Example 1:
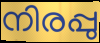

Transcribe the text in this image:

നിരപ്പു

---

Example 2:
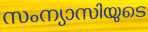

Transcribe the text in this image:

സംന്യാസിയുടെ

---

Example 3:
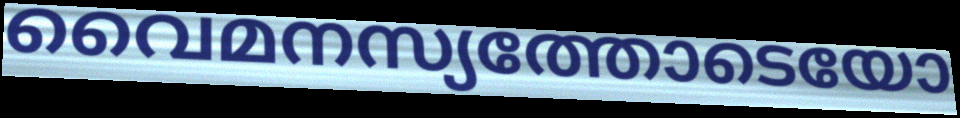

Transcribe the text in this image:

വൈമനസ്യത്തോടെയോ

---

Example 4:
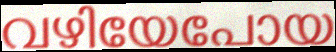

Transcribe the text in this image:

വഴിയേപോയ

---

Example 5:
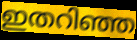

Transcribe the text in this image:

ഇതറിഞ്ഞ